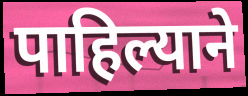
पाहिल्याने